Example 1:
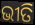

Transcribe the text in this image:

ଭୀତି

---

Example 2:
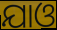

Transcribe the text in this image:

ଯାଓ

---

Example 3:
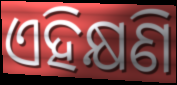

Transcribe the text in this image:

ଏହିକ୍ଷଣି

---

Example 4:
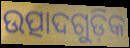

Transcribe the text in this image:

ଉତ୍ପାଦଗୁଡ଼ିକ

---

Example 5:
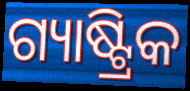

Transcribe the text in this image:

ଗ୍ୟାଷ୍ଟ୍ରିକ